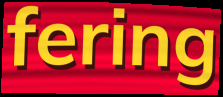
fering